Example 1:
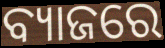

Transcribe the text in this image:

ବ୍ୟାଜରେ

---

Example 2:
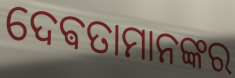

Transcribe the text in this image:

ଦେଵତାମାନଙ୍କର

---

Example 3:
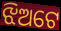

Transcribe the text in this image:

ଝିଅଟେ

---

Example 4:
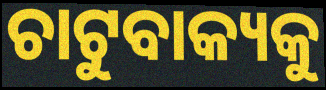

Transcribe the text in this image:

ଚାଟୁବାକ୍ୟକୁ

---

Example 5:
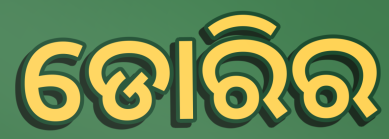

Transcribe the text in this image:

ଡୋରିର